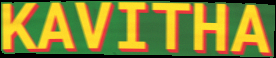
KAVITHA